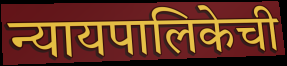
न्यायपालिकेची